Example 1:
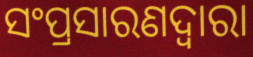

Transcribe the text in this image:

ସଂପ୍ରସାରଣଦ୍ଵାରା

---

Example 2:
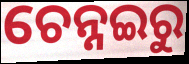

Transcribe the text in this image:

ଚେନ୍ନଇରୁ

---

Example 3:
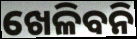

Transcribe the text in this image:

ଖେଳିବନି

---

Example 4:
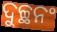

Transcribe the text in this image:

ଦୁଚ୍ଛନଂ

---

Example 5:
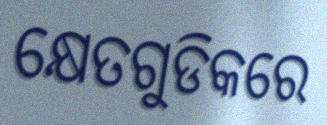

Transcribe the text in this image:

କ୍ଷେତଗୁଡିକରେ